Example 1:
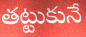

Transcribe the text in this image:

తట్టుకునే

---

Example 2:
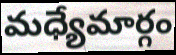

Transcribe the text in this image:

మధ్యేమార్గం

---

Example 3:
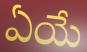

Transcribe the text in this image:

ఏయే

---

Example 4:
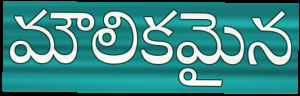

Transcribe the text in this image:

మౌలికమైన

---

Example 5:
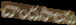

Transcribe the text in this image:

చాందసాలను